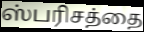
ஸ்பரிசத்தை